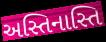
અસ્તિનાસ્તિ